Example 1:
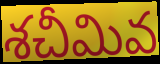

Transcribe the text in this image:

శచీమివ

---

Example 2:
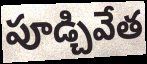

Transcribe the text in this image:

పూడ్చివేత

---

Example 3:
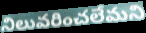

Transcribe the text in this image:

నిలువరించలేమని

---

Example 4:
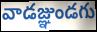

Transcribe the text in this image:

వాడజ్ఞుండగు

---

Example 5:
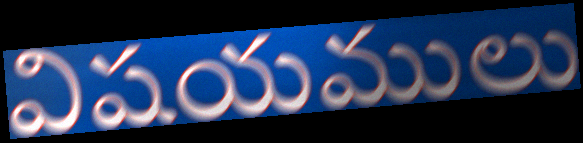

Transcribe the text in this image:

విషయములు